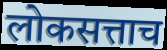
लोकसत्ताच